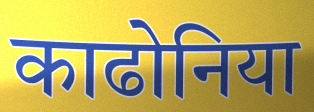
काढोनिया